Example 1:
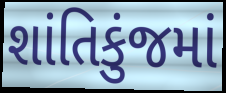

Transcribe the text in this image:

શાંતિકુંજમાં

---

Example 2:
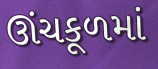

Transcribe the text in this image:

ઊંચકૂળમાં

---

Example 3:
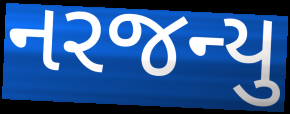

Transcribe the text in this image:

નરજન્યુ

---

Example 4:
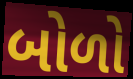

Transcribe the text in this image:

બોળો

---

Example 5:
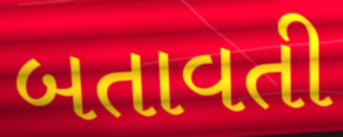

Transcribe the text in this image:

બતાવતી